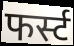
फर्स्ट